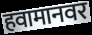
हवामानवर